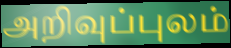
அறிவுப்புலம்